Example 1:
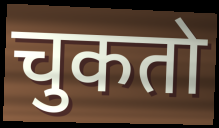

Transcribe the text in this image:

चुकतो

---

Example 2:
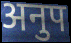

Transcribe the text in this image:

अनुप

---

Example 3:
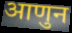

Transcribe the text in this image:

आणुन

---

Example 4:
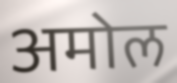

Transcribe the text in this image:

अमोल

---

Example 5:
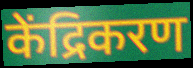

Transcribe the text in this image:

केंद्रिकरण